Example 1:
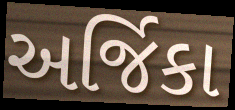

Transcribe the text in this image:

અર્જિકા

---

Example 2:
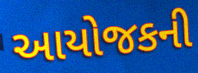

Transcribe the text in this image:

આયોજકની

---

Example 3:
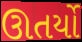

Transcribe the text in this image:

ઊતર્યો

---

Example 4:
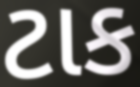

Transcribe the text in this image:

ટાક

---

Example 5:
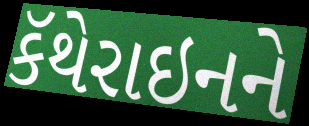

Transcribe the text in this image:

કૅથેરાઇનને